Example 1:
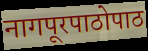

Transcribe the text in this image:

नागपूरपाठोपाठ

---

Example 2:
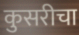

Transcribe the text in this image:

कुसरीचा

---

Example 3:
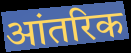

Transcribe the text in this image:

आंतरिक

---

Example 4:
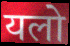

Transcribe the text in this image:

यलो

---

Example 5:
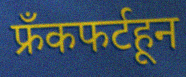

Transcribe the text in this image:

फ्रँकफर्टहून